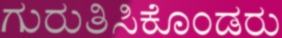
ಗುರುತಿಸಿಕೊಂಡರು